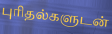
புரிதல்களுடன்